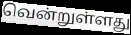
வென்றுள்ளது